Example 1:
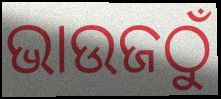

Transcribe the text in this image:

ଭାଉଜଠୁଁ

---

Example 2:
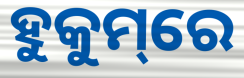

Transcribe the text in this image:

ହୁକୁମ୍‌ରେ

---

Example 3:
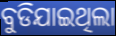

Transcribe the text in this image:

ବୁଡିଯାଇଥିଲା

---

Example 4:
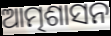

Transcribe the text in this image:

ଆତ୍ମଶାସନ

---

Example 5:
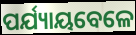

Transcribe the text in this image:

ପର୍ଯ୍ୟାୟବେଳେ